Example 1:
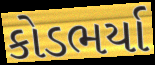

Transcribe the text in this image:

કોડભર્યા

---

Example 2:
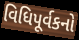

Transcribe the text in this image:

વિધિપૂર્વકનો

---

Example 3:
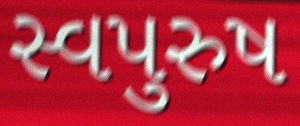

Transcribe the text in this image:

સ્વપુરુષ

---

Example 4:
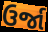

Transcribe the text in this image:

ઉર્જા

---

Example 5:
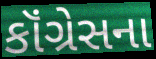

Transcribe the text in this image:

કૉંગ્રેસના